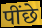
पींछे